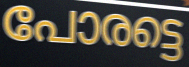
പോരട്ടെ